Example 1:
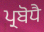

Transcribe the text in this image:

ਪ੍ਰਬੋਧੈ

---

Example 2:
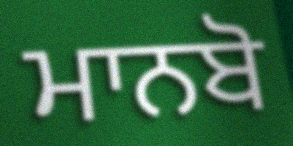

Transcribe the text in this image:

ਮਾਨਬੋ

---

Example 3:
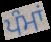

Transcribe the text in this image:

ਪੰਮਾਂ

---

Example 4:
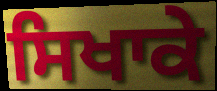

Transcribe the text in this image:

ਸਿਖਾਕੇ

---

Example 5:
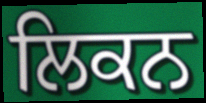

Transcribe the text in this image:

ਲਿਕਨ